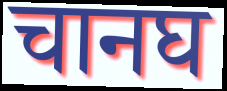
चानघ